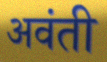
अवंती